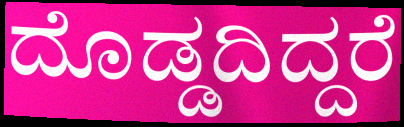
ದೊಡ್ಡದಿದ್ದರೆ